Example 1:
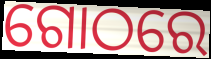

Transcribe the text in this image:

ଗୋଠରେ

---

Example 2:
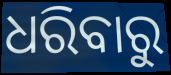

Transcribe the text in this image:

ଧରିବାରୁ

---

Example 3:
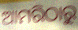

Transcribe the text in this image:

ଆମରିଠାରୁ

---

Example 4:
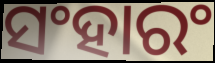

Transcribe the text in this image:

ସଂହାରଂ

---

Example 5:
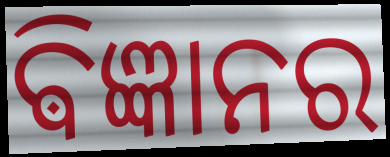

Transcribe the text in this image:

ଵିଜ୍ଞାନର